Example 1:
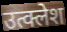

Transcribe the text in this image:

उत्क्लेश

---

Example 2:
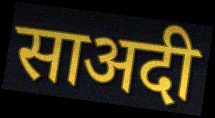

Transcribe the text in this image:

साअदी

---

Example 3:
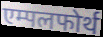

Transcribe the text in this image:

एम्पलफोर्थ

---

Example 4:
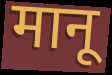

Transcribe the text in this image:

मानू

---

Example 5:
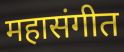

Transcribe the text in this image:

महासंगीत